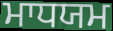
ਮਾਧਯਮ